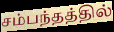
சம்பந்தத்தில்